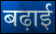
बढ़ाई